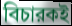
বিচারকই